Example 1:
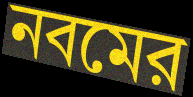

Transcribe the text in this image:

নবমের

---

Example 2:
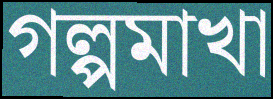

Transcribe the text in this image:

গল্পমাখা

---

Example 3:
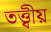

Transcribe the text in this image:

তত্ত্বীয়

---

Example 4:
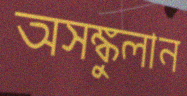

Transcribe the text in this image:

অসঙ্কুলান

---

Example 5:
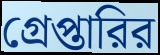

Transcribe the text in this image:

গ্রেপ্তারির